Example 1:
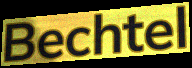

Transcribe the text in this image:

Bechtel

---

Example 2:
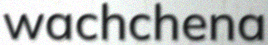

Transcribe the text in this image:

wachchena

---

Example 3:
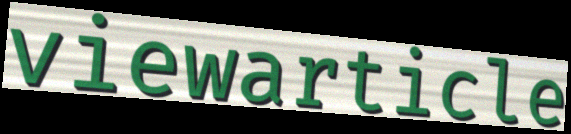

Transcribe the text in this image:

viewarticle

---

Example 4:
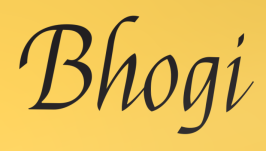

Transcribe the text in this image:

Bhogi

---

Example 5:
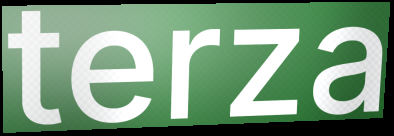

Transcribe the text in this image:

terza